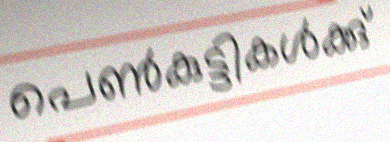
പെൺകുട്ടികൾക്കു്